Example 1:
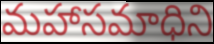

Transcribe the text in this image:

మహాసమాధిని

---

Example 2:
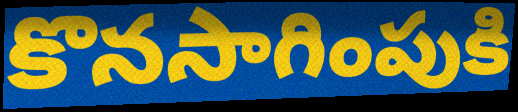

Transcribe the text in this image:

కొనసాగింపుకి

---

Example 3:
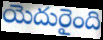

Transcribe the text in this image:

యెదురైంది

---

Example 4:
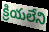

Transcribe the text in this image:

క్రియలేని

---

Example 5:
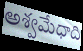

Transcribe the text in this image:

అశ్వమేధాది